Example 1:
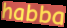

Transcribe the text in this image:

habba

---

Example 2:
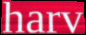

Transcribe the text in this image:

harv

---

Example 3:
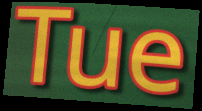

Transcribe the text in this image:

Tue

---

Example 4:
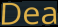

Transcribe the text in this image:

Dea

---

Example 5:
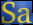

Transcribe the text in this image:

Sa